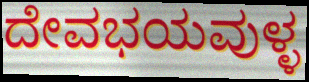
ದೇವಭಯವುಳ್ಳ